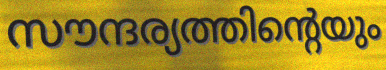
സൗന്ദര്യത്തിന്റെയും